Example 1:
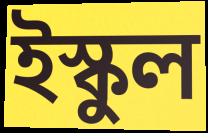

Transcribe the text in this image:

ইস্কুল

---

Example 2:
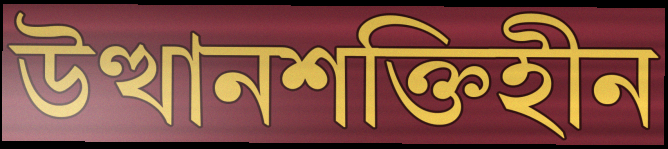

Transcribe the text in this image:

উত্থানশক্তিহীন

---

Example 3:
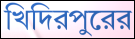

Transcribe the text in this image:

খিদিরপুরের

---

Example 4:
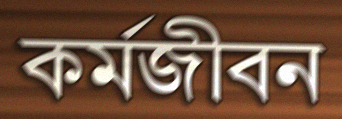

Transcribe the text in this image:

কর্মজীবন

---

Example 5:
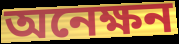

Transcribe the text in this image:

অনেক্ষন